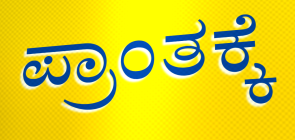
ಪ್ರಾಂತಕ್ಕೆ